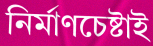
নির্মাণচেষ্টাই